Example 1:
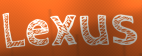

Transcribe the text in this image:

Lexus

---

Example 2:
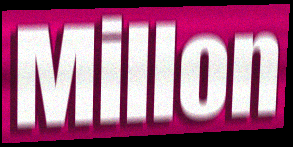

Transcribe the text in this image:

Millon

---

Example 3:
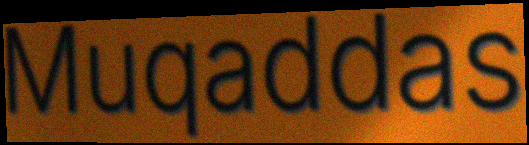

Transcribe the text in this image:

Muqaddas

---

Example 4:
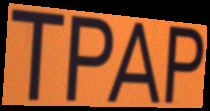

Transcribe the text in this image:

TPAP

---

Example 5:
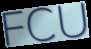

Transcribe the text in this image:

FCU